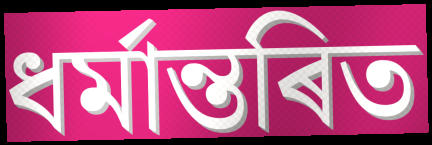
ধৰ্মান্তৰিত